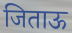
जिताऊ